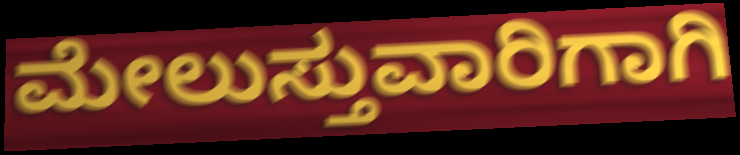
ಮೇಲುಸ್ತುವಾರಿಗಾಗಿ